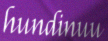
hundinuu